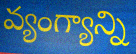
వ్యంగ్యాన్ని